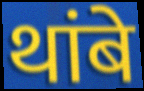
थांबे